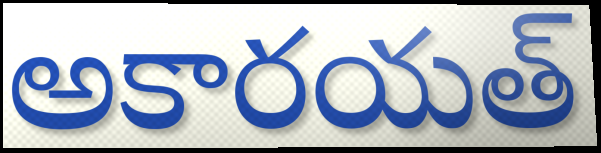
అకారయత్